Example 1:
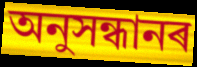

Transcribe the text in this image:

অনুসন্ধানৰ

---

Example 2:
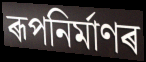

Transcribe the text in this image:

ৰূপনিৰ্মাণৰ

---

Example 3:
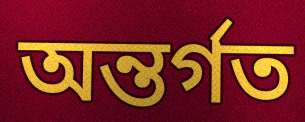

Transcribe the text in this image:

অন্তৰ্গত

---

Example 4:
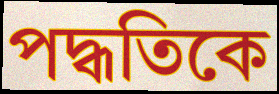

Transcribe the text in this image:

পদ্ধতিকে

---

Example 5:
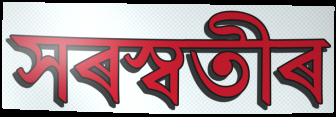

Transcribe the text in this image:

সৰস্বতীৰ